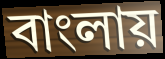
বাংলায়